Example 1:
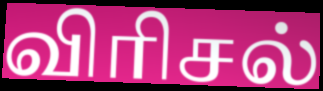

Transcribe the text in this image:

விரிசல்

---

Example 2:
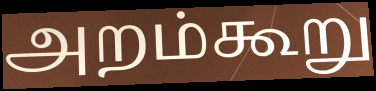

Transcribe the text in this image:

அறம்கூறு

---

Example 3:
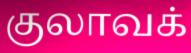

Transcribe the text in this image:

குலாவக்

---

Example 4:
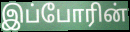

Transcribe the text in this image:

இப்போரின்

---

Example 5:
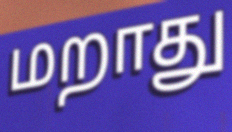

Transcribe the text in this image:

மறாது